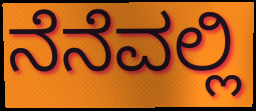
ನೆನೆವಲ್ಲಿ